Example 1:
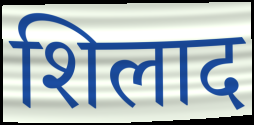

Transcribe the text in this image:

शिलाद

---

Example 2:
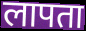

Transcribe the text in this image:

लापता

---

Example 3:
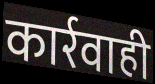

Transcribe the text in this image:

कार्रवाही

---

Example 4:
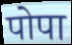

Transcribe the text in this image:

पोपा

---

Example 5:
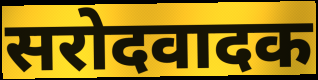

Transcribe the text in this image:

सरोदवादक